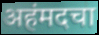
अहंमदचा